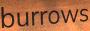
burrows